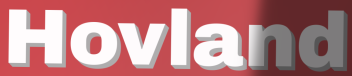
Hovland